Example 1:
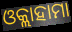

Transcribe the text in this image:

ଓକ୍ଲାହାମା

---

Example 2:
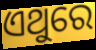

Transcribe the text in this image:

ଏଥୁରେ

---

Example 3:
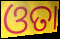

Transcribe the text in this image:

ଓତା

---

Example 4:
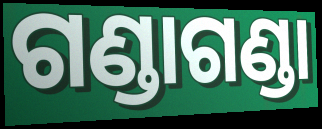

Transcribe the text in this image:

ଗଣ୍ଡାଗଣ୍ଡା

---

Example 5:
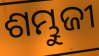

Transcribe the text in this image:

ଶମ୍ଭୁଜୀ